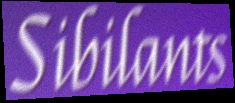
Sibilants